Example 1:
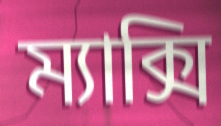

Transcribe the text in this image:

ম্যাক্সি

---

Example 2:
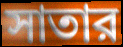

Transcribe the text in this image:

সাতার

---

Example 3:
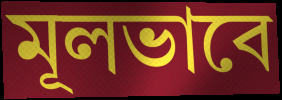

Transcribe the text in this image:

মূলভাবে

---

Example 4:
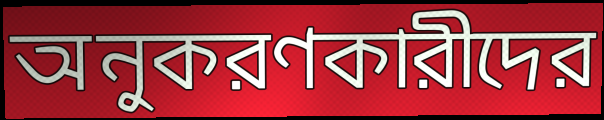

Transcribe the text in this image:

অনুকরণকারীদের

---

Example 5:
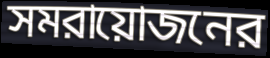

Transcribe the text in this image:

সমরায়োজনের